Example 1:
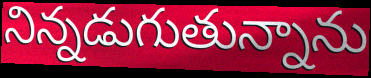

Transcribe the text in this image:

నిన్నడుగుతున్నాను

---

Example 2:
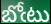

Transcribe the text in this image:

బోఁటు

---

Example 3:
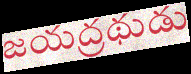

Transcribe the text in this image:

జయద్రథుడు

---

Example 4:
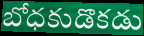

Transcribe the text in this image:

బోధకుడొకడు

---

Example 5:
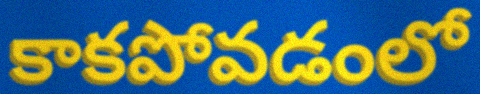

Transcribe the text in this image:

కాకపోవడంలో